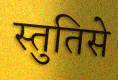
स्तुतिसे